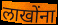
लाखोंना